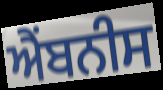
ਐਂਬਨੀਸ